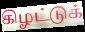
கிழட்டுக்